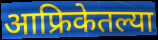
आफ्रिकेतल्या